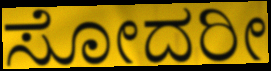
ಸೋದರೀ